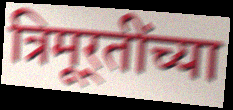
त्रिमूर्तींच्या